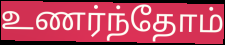
உணர்ந்தோம்